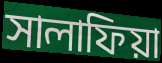
সালাফিয়া